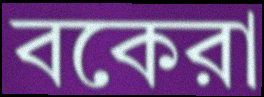
বকেরা